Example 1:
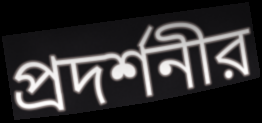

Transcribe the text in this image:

প্রদর্শনীর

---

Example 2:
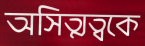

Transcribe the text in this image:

অসিত্মত্বকে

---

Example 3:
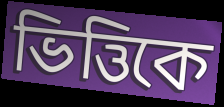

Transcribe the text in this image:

ভিত্তিকে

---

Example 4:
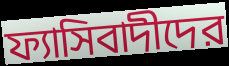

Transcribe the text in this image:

ফ্যাসিবাদীদের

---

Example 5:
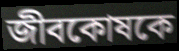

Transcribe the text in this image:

জীবকোষকে